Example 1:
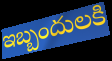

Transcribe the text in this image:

ఇబ్బందులకి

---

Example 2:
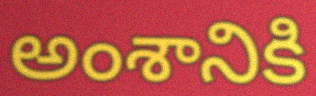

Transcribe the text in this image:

అంశానికి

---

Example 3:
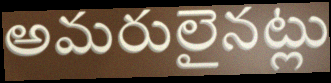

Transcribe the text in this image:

అమరులైనట్లు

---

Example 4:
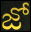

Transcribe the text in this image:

జో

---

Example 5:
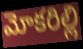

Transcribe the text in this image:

మోకరిల్లి